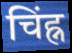
चिंह्न